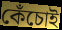
কেঁচোই